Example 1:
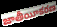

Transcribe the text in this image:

జాతీయీకరణ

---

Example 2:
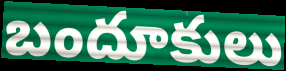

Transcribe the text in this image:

బందూకులు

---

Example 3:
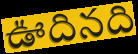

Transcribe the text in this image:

ఊదినది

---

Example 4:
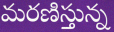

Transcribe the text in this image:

మరణిస్తున్న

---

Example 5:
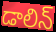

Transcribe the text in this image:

డాలిన్